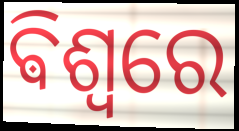
ଵିଶ୍ଵରେ